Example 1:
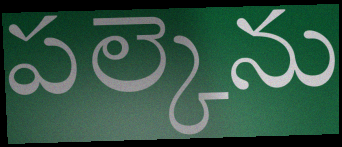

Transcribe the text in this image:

పల్కెను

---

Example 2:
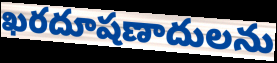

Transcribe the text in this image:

ఖరదూషణాదులను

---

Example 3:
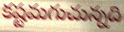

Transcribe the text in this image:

కష్టమగుచున్నది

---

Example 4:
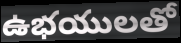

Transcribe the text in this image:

ఉభయులతో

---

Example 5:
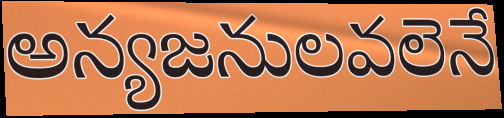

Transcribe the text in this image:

అన్యజనులవలెనే